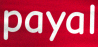
payal